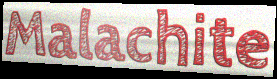
Malachite